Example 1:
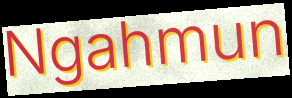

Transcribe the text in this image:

Ngahmun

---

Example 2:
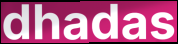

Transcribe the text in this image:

dhadas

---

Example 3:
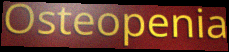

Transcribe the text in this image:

Osteopenia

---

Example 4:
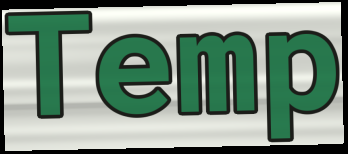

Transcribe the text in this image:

Temp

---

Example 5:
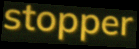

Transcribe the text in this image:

stopper